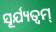
ସୂର୍ଯ୍ୟତ୍ୱମ୍